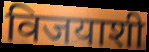
विजयाशी